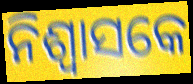
ନିଶ୍ୱାସକେ